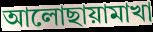
আলোছায়ামাখা